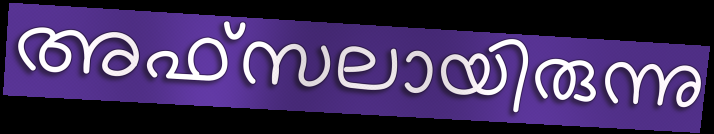
അഫ്സലായിരുന്നു